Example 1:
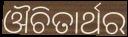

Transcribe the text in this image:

ଔଚିତାର୍ଥର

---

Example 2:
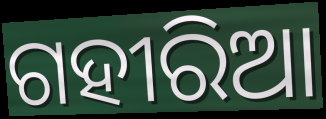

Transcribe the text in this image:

ଗହୀରିଆ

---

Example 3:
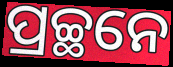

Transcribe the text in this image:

ପ୍ରଚ୍ଛନେ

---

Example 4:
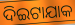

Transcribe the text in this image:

ଦିଇଟାଯାକ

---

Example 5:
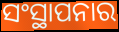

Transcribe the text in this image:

ସଂସ୍ଥାପନାର